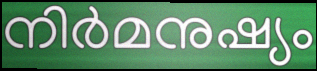
നിർമനുഷ്യം